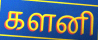
களனி